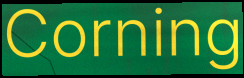
Corning